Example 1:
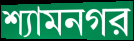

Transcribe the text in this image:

শ্যামনগর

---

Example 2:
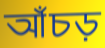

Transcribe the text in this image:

আঁচড়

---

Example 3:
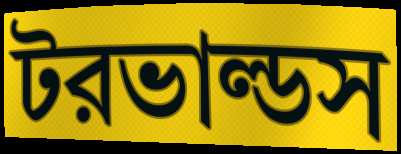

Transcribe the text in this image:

টরভাল্ডস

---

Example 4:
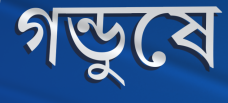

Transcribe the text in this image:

গন্ডুষে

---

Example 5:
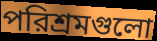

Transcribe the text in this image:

পরিশ্রমগুলো